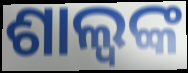
ଶାଲ୍ୱଙ୍କ